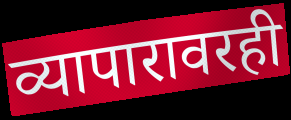
व्यापारावरही